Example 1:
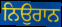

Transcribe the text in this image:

ਨਿਉਰਾਨ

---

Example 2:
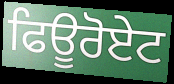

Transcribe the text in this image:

ਫਿਊਰੋਏਟ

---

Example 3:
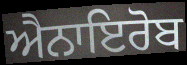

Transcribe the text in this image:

ਐਨਾਇਰੋਬ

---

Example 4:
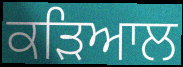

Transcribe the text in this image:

ਕੜਿਆਲ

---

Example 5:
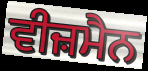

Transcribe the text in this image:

ਵੀਜ਼ਮੈਨ